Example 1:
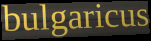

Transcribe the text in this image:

bulgaricus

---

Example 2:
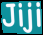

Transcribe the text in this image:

Jiji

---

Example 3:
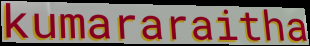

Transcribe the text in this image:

kumararaitha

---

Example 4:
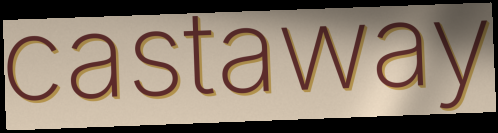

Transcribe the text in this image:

castaway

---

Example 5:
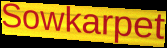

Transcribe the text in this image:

Sowkarpet